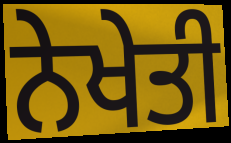
ਨੇਖੇਤੀ